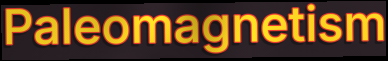
Paleomagnetism